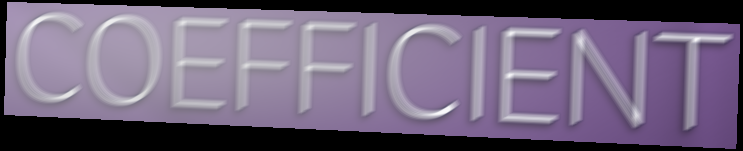
COEFFICIENT